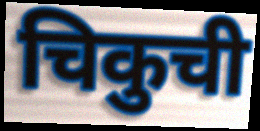
चिकुची